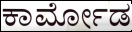
ಕಾರ್ಮೋಡ